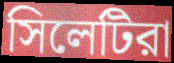
সিলেটিরা